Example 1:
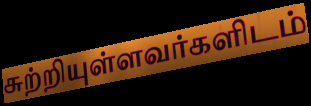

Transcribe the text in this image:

சுற்றியுள்ளவர்களிடம்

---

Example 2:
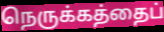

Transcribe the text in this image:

நெருக்கத்தைப்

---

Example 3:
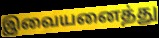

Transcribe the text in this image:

இவையனைத்து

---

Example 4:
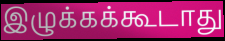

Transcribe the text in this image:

இழுக்கக்கூடாது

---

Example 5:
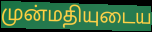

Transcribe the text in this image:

முன்மதியுடைய